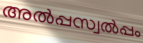
അൽപ്പസ്വൽപ്പം